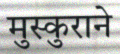
मुस्‍कुराने